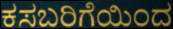
ಕಸಬರಿಗೆಯಿಂದ